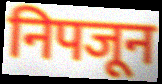
निपजून